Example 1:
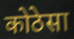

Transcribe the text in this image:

कोठेसा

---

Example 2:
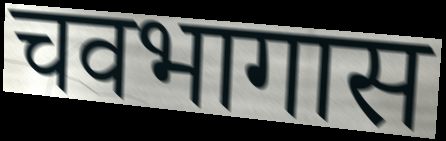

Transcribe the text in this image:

चवभागास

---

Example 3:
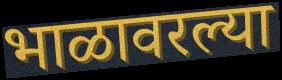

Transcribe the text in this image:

भाळावरल्या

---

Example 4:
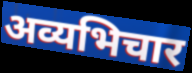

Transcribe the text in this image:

अव्यभिचार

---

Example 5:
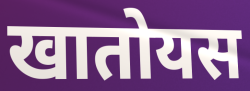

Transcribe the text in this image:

खातोयस